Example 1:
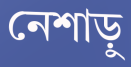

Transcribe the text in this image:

নেশাড়ু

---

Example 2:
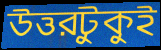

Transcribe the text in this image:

উত্তরটুকুই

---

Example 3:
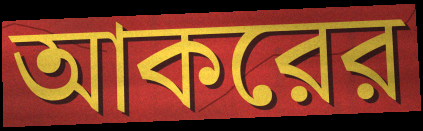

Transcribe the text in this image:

আকরের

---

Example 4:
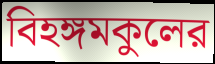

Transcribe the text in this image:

বিহঙ্গমকুলের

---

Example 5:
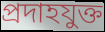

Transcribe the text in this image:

প্রদাহযুক্ত